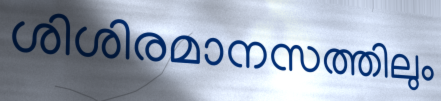
ശിശിരമാനസത്തിലും